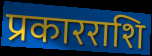
प्रकारराशि